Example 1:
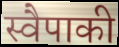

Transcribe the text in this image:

स्वैपाकी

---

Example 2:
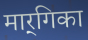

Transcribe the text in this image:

मार्गिका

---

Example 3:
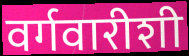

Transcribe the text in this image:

वर्गवारीशी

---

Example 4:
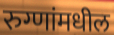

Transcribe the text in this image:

रुग्णांमधील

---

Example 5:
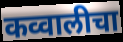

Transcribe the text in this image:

कव्वालीचा